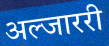
अल्जाररी